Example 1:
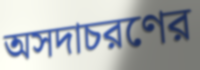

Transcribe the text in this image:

অসদাচরণের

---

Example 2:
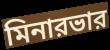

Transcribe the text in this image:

মিনারভার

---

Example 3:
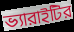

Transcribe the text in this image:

ভ্যারাইটির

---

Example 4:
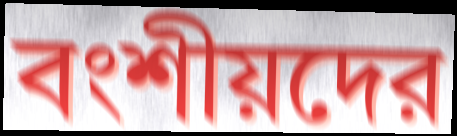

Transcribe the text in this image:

বংশীয়দের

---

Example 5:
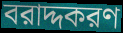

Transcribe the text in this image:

বরাদ্দকরণ